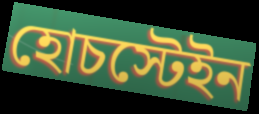
হোচস্টেইন